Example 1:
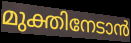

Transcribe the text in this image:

മുക്തിനേടാൻ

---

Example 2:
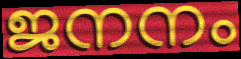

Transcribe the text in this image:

ജനനം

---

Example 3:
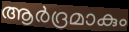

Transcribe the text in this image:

ആർദ്രമാകും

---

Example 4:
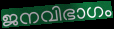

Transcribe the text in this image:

ജനവിഭാഗം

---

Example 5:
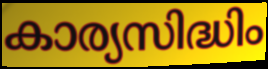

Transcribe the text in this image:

കാര്യസിദ്ധിം